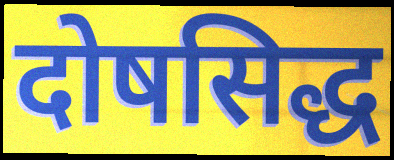
दोषसिद्ध